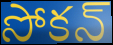
సోకన్